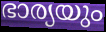
ഭാര്യയും